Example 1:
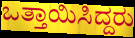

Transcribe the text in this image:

ಒತ್ತಾಯಿಸಿದ್ದರು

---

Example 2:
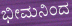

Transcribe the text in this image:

ಭೀಮನಿಂದ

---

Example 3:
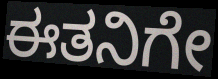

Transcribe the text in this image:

ಈತನಿಗೇ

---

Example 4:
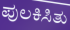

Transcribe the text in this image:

ಪುಲಕಿಸಿತು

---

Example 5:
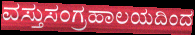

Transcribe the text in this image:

ವಸ್ತುಸಂಗ್ರಹಾಲಯದಿಂದ